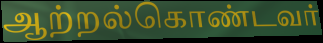
ஆற்றல்கொண்டவர்